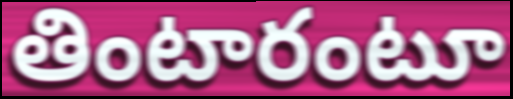
తింటారంటూ